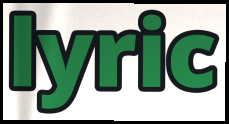
lyric